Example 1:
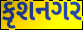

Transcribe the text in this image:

કૃશનગર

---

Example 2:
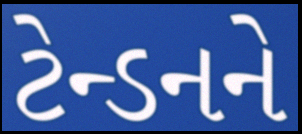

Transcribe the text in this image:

ટેન્ડનને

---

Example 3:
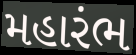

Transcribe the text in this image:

મહારંભ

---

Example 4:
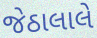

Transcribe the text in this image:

જેઠાલાલે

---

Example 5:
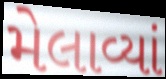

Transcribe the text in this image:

મેલાવ્યાં